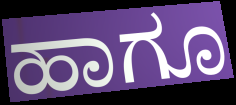
ಹಾಗೂ